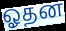
ஓதன